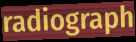
radiograph